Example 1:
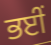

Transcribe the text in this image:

ਭਈਂ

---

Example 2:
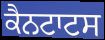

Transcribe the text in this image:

ਕੈਨਟਾਟਸ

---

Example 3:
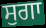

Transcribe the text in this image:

ਸੁਗਾ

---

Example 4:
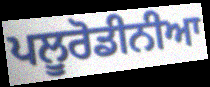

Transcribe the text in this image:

ਪਲੂਰੋਡੀਨੀਆ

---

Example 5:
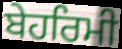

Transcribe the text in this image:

ਬੇਹਰਿਮੀ